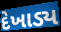
દેખાડ્ય